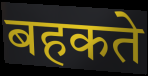
बहकते